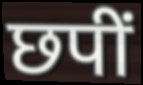
छपीं